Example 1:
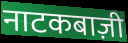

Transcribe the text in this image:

नाटकबाज़ी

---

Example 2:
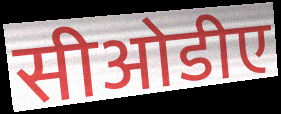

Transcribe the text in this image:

सीओडीए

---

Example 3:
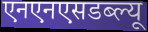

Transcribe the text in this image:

एनएनएसडब्ल्यू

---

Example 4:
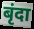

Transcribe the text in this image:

बृंदा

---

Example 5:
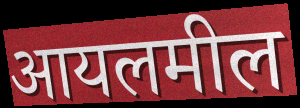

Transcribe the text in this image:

आयलमील